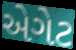
એગેટ